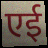
एई